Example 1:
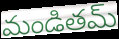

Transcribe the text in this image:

మండితమ్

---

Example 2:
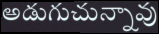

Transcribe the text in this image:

అడుగుచున్నావు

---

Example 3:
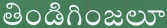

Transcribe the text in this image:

తిండిగింజలూ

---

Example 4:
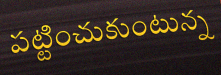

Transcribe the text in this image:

పట్టించుకుంటున్న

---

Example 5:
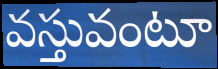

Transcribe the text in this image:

వస్తువంటూ